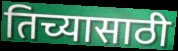
तिच्यासाठी